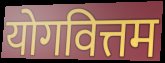
योगवित्तम